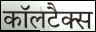
कॉलटैक्स